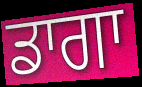
ਡਾਗਾ